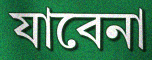
যাবেনা